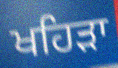
ਖਹਿਡ਼ਾ